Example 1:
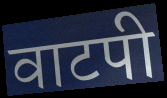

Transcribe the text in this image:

वाटपी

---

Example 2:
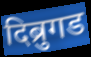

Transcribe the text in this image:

दिब्रुगड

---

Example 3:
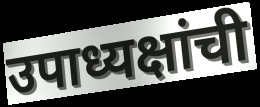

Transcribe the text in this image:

उपाध्यक्षांची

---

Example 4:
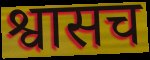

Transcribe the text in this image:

श्वासच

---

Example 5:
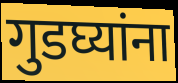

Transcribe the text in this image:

गुडघ्यांना